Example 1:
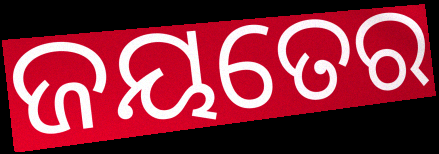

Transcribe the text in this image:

ଜୟତେର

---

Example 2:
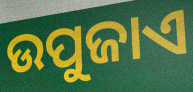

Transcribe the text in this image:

ଉପୁଜାଏ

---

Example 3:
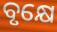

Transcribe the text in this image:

ବୃକ୍ଷେ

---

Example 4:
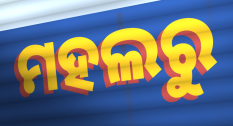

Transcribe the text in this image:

ମହଲରୁ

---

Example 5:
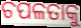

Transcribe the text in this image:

ଚପଳତାକୁ